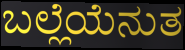
ಬಲ್ಲೆಯೆನುತ